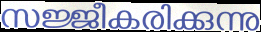
സജ്ജീകരിക്കുന്നു